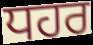
ਧਹਰ